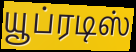
யூப்ரடிஸ்